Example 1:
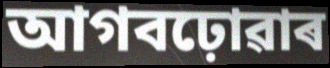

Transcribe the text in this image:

আগবঢ়োৱাৰ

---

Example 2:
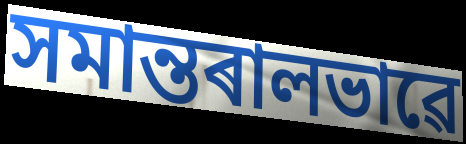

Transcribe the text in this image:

সমান্তৰালভাৱে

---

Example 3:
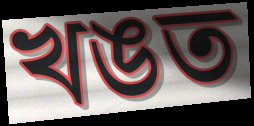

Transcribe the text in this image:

খঙত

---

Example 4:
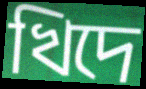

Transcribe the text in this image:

খিদে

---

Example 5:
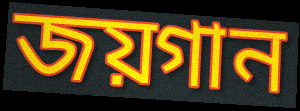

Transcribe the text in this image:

জয়গান